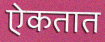
ऐकतात